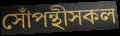
সোঁপন্থীসকল